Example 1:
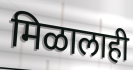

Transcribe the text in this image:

मिळालाही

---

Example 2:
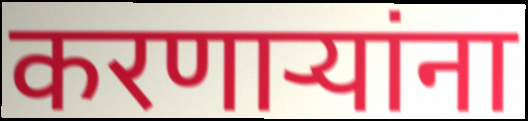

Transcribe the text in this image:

करणार्‍यांना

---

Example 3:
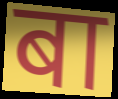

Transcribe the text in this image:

बा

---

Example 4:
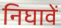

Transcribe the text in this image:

निघावें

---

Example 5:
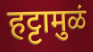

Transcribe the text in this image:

हट्टामुळं